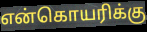
என்கொயரிக்கு